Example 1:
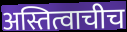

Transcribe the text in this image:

अस्तित्वाचीच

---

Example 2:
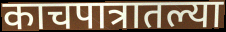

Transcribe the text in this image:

काचपात्रातल्या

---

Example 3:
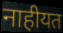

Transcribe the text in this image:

नाहीयत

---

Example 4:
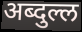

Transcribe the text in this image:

अब्दुल्ल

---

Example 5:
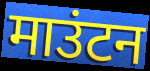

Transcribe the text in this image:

माउंटन